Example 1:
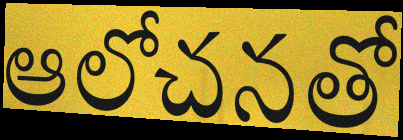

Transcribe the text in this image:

ఆలోచనతో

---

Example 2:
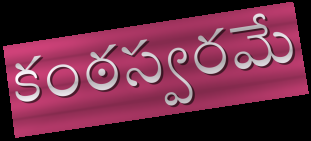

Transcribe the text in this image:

కంఠస్వరమే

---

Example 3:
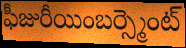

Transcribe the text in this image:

ఫీజురీయింబర్స్మెంట్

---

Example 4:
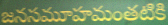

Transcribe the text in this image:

జనసమూహమంతటికి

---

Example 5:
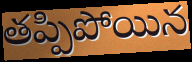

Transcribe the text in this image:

తప్పిపోయిన